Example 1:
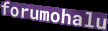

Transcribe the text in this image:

forumohalu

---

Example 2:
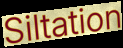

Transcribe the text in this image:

Siltation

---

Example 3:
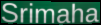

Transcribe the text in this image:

Srimaha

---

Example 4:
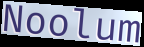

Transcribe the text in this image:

Noolum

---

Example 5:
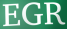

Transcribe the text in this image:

EGR